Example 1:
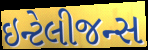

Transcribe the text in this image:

ઇન્ટેલીજન્સ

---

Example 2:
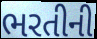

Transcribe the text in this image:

ભરતીની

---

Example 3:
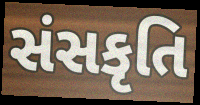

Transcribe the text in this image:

સંસકૃતિ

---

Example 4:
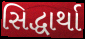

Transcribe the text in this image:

સિદ્ધાર્થા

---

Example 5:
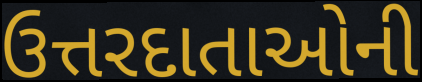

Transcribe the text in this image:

ઉત્તરદાતાઓની